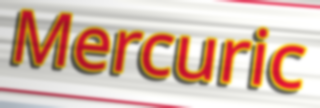
Mercuric